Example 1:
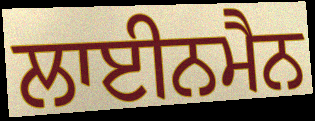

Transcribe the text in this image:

ਲਾਈਨਮੈਨ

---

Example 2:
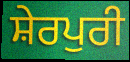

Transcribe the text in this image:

ਸ਼ੇਰਪੁਰੀ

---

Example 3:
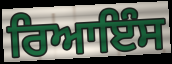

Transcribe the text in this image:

ਰਿਆਇੰਸ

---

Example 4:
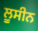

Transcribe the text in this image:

ਲੂਸੀਨ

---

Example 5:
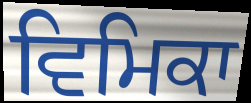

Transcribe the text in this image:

ਵਿਮਿਕਾ